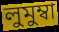
লুমুম্বা